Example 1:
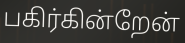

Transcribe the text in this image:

பகிர்கின்றேன்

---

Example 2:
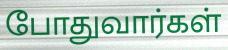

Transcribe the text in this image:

போதுவார்கள்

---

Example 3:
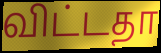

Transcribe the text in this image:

விட்டதா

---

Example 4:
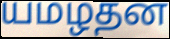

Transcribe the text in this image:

யமழதன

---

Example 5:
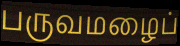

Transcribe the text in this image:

பருவமழைப்